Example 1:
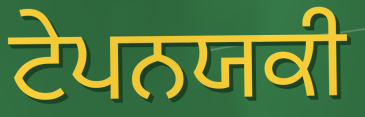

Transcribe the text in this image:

ਟੇਪਨਯਕੀ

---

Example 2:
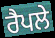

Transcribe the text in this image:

ਰੈਪਲੇ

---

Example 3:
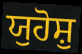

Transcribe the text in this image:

ਯੁਹੋਸ਼ੁ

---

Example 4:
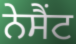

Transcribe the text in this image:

ਨੇਸੈਂਟ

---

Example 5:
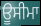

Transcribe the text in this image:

ਊਸੀਮਾ